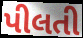
પીલતી